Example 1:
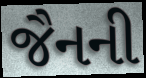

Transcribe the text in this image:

જૈનની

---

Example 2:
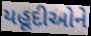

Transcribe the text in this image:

યહૂદીઓને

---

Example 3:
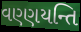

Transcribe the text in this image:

વણ્ણયન્તિ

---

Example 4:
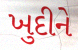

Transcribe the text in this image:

ખુદીને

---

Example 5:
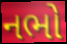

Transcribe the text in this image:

નભો